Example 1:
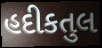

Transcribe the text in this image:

હદીકતુલ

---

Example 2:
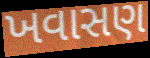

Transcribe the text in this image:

ખવાસણ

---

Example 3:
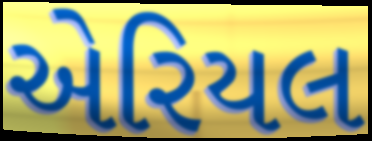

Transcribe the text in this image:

એરિયલ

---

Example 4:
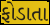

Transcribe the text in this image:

ફોડાતા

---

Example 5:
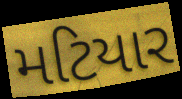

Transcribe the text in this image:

મટિયાર